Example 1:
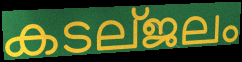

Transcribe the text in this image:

കടല്ജലം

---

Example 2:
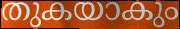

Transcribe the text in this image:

തുകയാകും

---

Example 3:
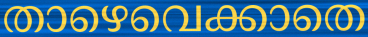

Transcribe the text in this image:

താഴെവെക്കാതെ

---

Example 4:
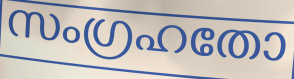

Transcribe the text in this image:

സംഗ്രഹതോ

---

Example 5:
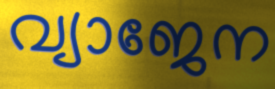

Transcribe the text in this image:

വ്യാജേന